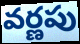
వర్ణపు